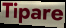
Tipare